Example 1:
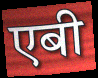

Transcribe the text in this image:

एबी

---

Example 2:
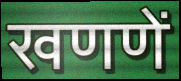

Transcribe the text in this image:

खणणें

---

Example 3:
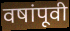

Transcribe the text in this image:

वषांपूवी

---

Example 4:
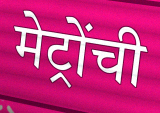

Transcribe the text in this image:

मेट्रोंची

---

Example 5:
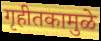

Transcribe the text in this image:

गृहीतकामुळे